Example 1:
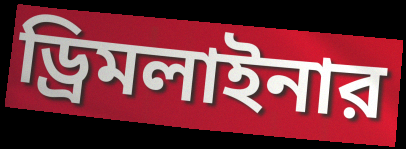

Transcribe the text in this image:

ড্রিমলাইনার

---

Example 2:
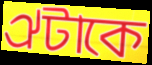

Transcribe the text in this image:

ঐটাকে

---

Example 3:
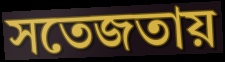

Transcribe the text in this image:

সতেজতায়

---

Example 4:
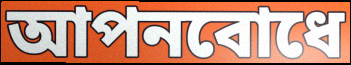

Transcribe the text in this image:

আপনবোধে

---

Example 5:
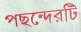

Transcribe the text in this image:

পছন্দেরটি